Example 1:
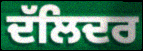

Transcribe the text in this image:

ਦੱਲਿਦਰ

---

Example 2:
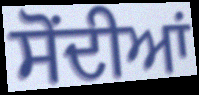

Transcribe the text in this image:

ਸੋਂਦੀਆਂ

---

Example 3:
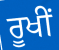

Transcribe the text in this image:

ਰੂਖੀਂ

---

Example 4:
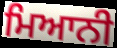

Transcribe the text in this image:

ਮਿਆਨੀ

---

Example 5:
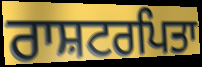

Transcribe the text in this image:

ਰਾਸ਼ਟਰਪਿਤਾ